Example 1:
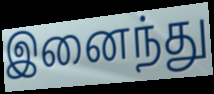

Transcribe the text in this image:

இனைந்து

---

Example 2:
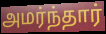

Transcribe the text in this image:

அமர்ந்தார்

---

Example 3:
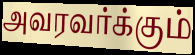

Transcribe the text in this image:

அவரவர்க்கும்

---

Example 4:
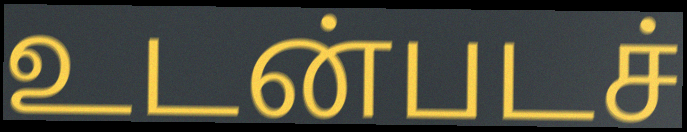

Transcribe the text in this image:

உடன்படச்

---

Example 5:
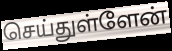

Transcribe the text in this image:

செய்துள்ளேன்